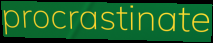
procrastinate